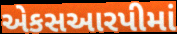
એકસઆરપીમાં